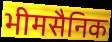
भीमसैनिक